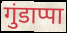
गुंडाप्पा